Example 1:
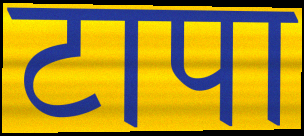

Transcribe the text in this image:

टापा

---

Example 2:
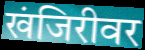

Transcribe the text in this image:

खंजिरीवर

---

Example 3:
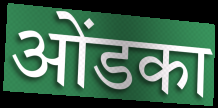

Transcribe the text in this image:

ओंडका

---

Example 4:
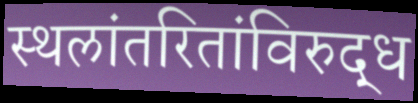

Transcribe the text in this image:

स्थलांतरितांविरुद्ध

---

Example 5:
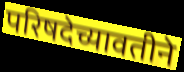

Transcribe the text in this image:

परिषदेच्यावतीने